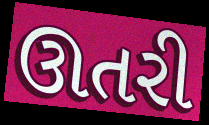
ઊતરી